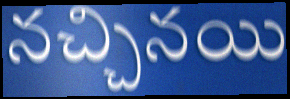
నచ్చినయి